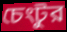
চেংটুর